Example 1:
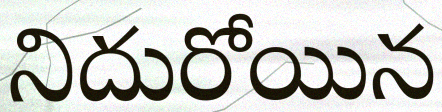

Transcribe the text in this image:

నిదురోయిన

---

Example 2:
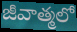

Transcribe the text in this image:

జీవాత్మలో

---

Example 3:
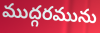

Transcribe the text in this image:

ముద్గరమును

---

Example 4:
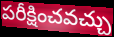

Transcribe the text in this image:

పరీక్షించవచ్చు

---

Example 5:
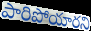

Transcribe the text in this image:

పారిపోయారని